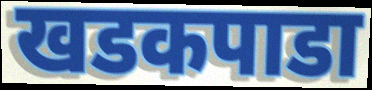
खडकपाडा